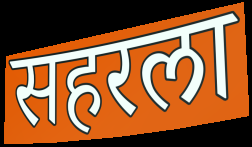
सहरला